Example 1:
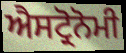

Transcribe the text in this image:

ਐਸਟ੍ਰੋਨੋਮੀ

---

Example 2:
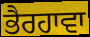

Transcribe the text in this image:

ਭੈਰਹਾਵਾ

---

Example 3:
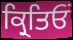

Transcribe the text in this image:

ਕ੍ਰਿਤਿਓਂ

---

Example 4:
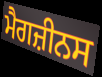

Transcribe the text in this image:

ਮੈਗਜ਼ੀਨਸ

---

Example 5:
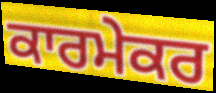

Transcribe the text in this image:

ਕਾਰਮੇਕਰ